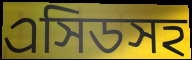
এসিডসহ